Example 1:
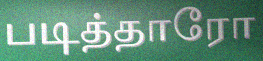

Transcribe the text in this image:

படித்தாரோ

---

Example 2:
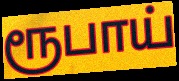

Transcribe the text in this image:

ரூபாய்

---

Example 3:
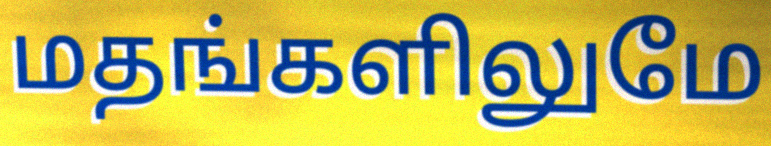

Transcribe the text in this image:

மதங்களிலுமே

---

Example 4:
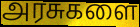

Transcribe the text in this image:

அரசுகளை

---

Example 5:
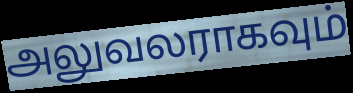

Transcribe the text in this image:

அலுவலராகவும்